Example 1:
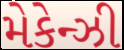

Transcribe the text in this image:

મેકેન્ઝી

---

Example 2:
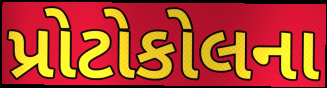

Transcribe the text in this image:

પ્રોટોકોલના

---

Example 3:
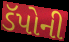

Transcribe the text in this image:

ડૅપોની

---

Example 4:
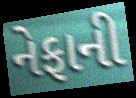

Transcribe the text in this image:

નેફાની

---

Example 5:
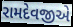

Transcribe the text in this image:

રામદેવજીએ